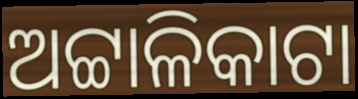
ଅଟ୍ଟାଳିକାଟା